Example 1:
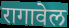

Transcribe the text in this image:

रागावेल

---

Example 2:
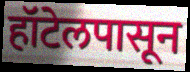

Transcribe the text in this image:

हॉटेलपासून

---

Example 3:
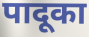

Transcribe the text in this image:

पादूका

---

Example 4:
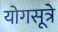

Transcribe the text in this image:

योगसूत्रे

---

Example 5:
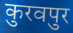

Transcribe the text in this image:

कुरवपुर